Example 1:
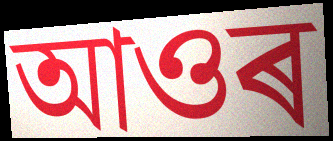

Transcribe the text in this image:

আওৰ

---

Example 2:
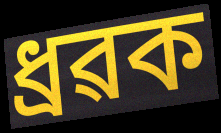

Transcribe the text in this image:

ধ্ৰৱক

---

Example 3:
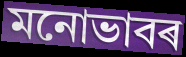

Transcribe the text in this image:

মনোভাবৰ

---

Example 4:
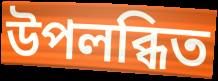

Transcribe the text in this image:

উপলব্ধিত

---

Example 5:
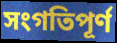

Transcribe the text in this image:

সংগতিপূৰ্ণ